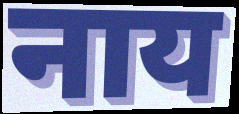
नाय